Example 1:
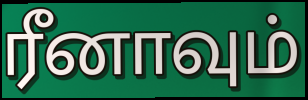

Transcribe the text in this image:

ரீனாவும்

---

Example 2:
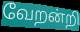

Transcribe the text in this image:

வேறன்றி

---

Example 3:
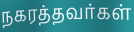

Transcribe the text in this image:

நகரத்தவர்கள்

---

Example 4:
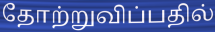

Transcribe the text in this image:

தோற்றுவிப்பதில்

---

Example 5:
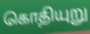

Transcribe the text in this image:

கொதியுறு